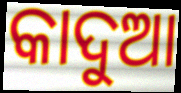
କାଦୁଆ